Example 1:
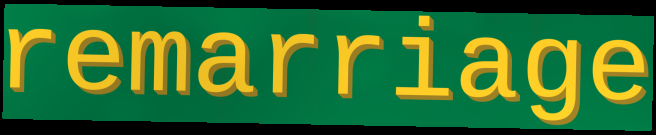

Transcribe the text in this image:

remarriage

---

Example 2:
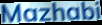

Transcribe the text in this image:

Mazhabi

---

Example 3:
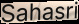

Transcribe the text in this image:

Sahasri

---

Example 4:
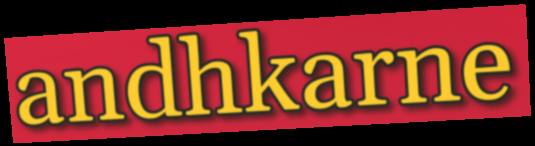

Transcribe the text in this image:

andhkarne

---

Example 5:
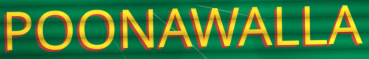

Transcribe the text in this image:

POONAWALLA